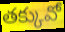
తక్కువో